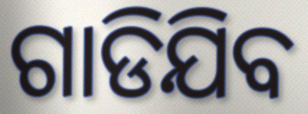
ଗାଡିଯିବ